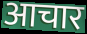
आचार